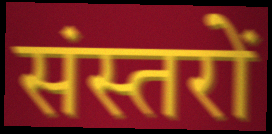
संस्तरों